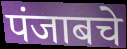
पंजाबचे